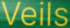
Veils